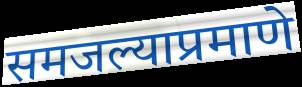
समजल्याप्रमाणे